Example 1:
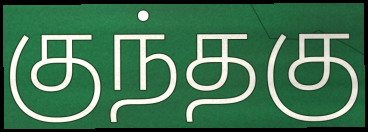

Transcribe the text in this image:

குந்தகு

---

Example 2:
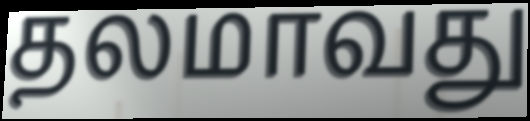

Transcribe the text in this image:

தலமாவது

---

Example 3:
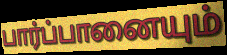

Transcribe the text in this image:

பார்ப்பானையும்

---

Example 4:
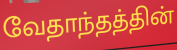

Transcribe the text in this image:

வேதாந்தத்தின்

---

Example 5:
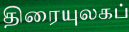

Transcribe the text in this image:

திரையுலகப்